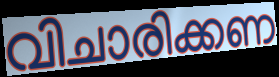
വിചാരിക്കണ